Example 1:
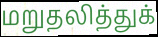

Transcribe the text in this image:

மறுதலித்துக்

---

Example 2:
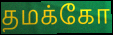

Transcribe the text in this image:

தமக்கோ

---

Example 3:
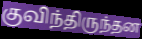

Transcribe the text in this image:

குவிந்திருந்தன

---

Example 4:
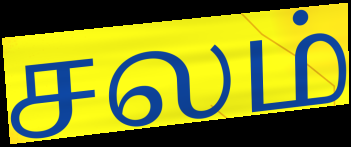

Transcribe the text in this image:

சலம்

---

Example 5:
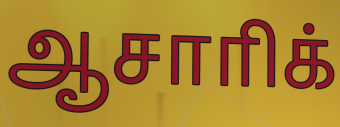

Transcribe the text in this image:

ஆசாரிக்